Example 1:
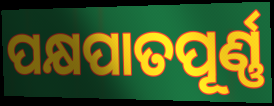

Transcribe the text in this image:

ପକ୍ଷପାତପୂର୍ଣ୍ଣ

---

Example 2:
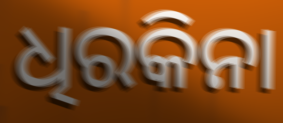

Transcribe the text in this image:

ଧିରକିନା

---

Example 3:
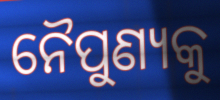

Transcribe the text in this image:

ନୈପୁଣ୍ୟକୁ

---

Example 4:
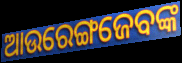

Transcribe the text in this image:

ଆଉରେଙ୍ଗଜେବଙ୍କ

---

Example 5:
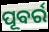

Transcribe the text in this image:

ପୂବର୍ର